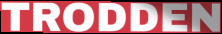
TRODDEN